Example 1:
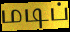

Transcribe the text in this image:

மடிப்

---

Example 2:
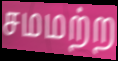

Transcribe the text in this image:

சமமற்ற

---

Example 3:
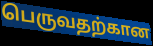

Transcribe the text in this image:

பெருவதற்கான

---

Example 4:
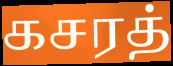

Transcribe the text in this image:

கசரத்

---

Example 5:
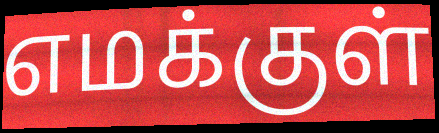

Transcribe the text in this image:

எமக்குள்